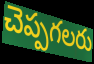
చెప్పగలరు